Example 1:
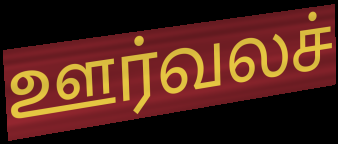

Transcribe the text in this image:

ஊர்வலச்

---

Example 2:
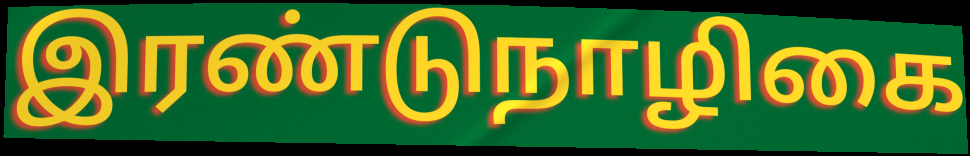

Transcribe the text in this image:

இரண்டுநாழிகை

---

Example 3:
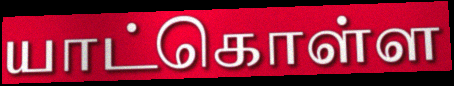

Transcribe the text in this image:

யாட்கொள்ள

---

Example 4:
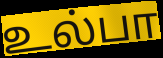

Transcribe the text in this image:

உல்பா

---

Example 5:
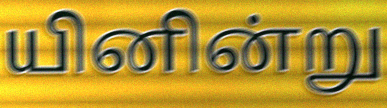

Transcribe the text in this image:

யினின்று